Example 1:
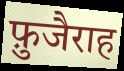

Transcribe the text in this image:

फ़ुजैराह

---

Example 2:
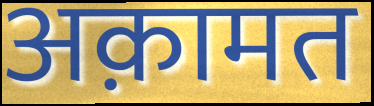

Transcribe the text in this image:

अक़ामत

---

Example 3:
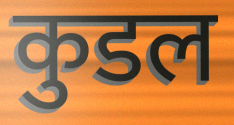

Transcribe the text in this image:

कुडल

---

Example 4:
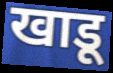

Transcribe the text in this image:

खाडू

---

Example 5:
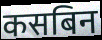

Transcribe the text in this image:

कसबिन